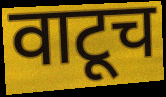
वाटूच